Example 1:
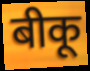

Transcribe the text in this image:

बीकू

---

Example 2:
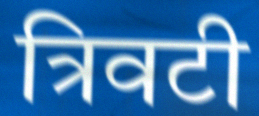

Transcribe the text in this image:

त्रिवटी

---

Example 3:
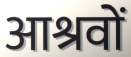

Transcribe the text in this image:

आश्रवों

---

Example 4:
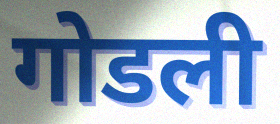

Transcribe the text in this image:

गोडली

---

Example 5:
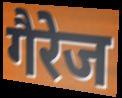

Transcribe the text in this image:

गैरेज